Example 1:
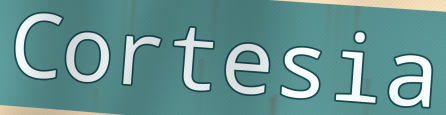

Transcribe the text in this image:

Cortesia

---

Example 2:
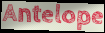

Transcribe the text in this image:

Antelope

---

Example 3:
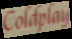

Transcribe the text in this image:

Coldplay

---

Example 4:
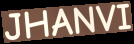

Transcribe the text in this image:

JHANVI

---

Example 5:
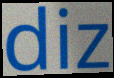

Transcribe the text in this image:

diz